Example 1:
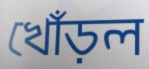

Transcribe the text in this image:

খোঁড়ল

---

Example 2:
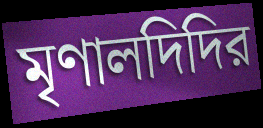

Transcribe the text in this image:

মৃণালদিদির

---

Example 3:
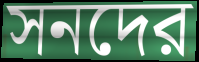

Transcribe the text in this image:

সনদের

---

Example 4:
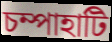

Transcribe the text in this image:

চম্পাহাটি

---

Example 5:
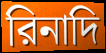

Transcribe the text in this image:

রিনাদি